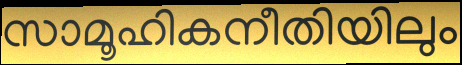
സാമൂഹികനീതിയിലും